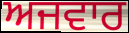
ਅਜਵਾਰ